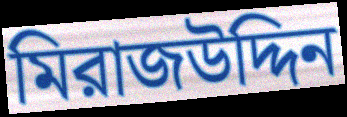
মিরাজউদ্দিন